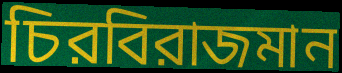
চিরবিরাজমান